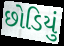
છોડિયું